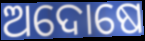
ଅଦୋଷେ